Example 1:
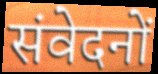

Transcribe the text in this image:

संवेदनों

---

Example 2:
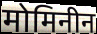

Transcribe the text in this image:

मोमिनीन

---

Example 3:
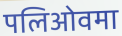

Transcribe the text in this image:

पलिओवमा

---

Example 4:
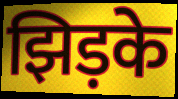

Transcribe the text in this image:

झिड़के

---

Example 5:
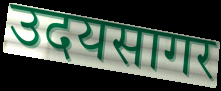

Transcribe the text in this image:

उदयसागर